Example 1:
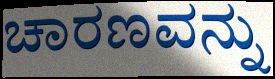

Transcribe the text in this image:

ಚಾರಣವನ್ನು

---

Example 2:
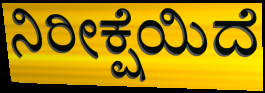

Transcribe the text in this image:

ನಿರೀಕ್ಷೆಯಿದೆ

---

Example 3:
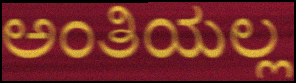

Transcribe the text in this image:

ಅಂತಿಯಲ್ಲ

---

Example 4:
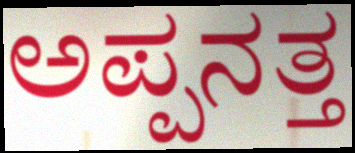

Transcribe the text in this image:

ಅಪ್ಪನತ್ತ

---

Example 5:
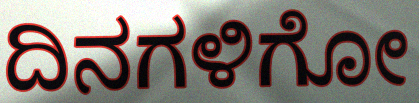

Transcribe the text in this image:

ದಿನಗಳಿಗೋ